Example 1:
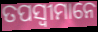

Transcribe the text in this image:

ତପସ୍ୱୀମାନେ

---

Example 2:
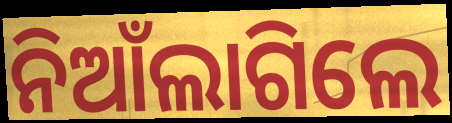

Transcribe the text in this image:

ନିଆଁଲାଗିଲେ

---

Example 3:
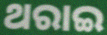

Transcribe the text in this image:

ଥରାଇ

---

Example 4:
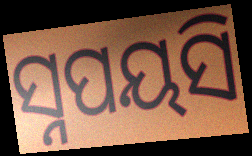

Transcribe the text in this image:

ସ୍ନପୟସି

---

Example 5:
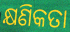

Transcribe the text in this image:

କ୍ଷଣିକତା